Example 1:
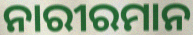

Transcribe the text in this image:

ନାରୀରମାନ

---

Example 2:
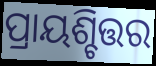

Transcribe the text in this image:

ପ୍ରାୟଶ୍ଚିତ୍ତର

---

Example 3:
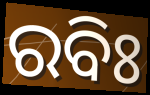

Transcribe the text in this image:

ରବିଃ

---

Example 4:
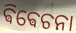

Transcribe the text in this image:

ଵିଵେଚନା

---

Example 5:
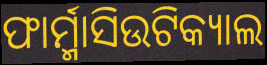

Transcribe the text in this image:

ଫାର୍ମ୍ମାସିଉଟିକ୍ୟାଲ